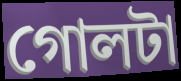
গোলটা